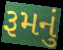
રૂમનું